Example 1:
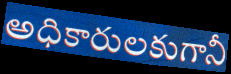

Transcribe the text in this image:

అధికారులకుగానీ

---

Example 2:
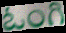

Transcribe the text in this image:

ఓంగి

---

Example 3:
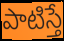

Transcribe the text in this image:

పాటిస్తే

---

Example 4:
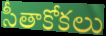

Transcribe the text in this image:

సీతాకోకలు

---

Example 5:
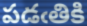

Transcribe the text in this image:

పడఁతికి